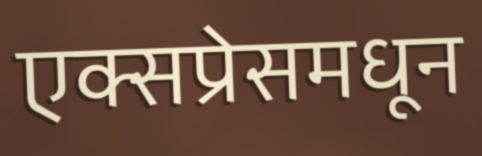
एक्सप्रेसमधून